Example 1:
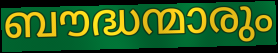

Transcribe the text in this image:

ബൗദ്ധന്മാരും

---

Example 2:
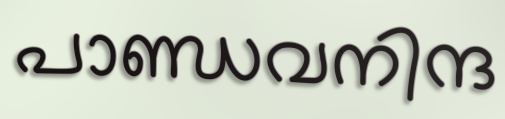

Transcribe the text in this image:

പാണ്ഡവനിന്ദ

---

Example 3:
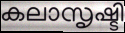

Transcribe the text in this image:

കലാസൃഷ്ടി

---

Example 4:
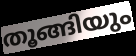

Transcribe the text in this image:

തൂങ്ങിയും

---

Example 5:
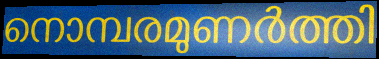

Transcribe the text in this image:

നൊമ്പരമുണർത്തി